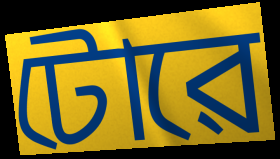
টোৱে